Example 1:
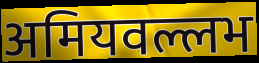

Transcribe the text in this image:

अमियवल्लभ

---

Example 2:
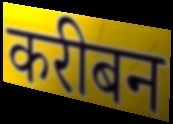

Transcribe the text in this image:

करीबन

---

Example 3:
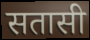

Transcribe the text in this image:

सतासी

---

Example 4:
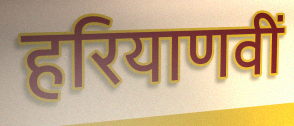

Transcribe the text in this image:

हरियाणवीं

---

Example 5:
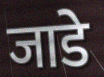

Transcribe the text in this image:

जाडे